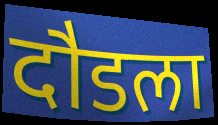
दौडला